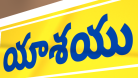
యాశయు